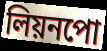
লিয়নপো